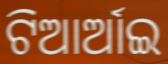
ଟିଆର୍ଆଇ